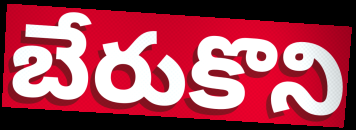
బేరుకొని